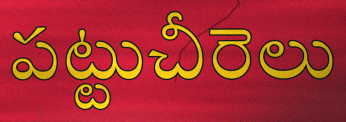
పట్టుచీరెలు